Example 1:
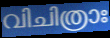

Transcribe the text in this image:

വിചിത്രാഃ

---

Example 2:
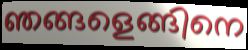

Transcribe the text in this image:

ഞങ്ങളെങ്ങിനെ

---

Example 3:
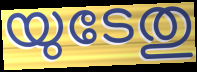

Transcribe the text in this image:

യുടേതു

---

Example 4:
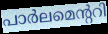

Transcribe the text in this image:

പാർലമെന്ററി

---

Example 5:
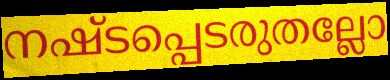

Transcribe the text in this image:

നഷ്ടപ്പെടരുതല്ലോ